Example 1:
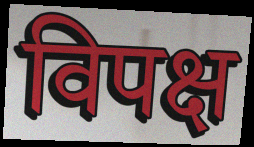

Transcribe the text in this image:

विपक्ष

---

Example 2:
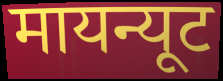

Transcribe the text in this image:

मायन्यूट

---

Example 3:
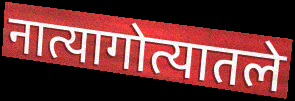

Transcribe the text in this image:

नात्यागोत्यातले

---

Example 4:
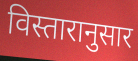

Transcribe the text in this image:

विस्तारानुसार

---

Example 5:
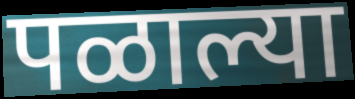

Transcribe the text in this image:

पळाल्या